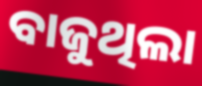
ବାଜୁଥିଲା